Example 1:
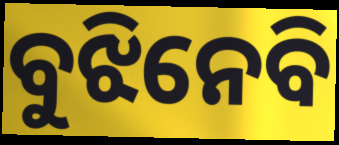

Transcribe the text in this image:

ବୁଝିନେବି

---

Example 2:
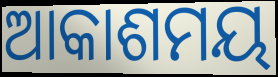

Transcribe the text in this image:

ଆକାଶମୟ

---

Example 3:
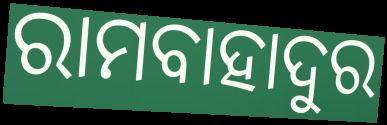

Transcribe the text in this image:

ରାମବାହାଦୁର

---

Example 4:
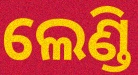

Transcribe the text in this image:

ଲେଣ୍ଡି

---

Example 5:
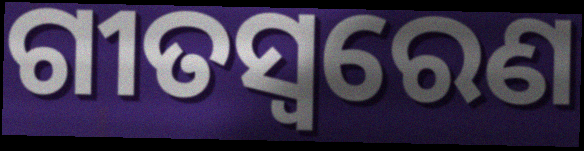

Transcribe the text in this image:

ଗୀତସ୍ବରେଣ